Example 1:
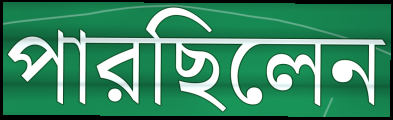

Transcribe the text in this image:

পারছিলেন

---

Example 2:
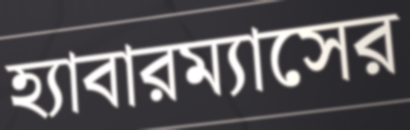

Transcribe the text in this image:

হ্যাবারম্যাসের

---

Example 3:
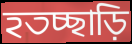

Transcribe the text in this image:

হতচ্ছাড়ি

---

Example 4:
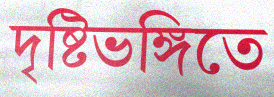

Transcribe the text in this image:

দৃষ্টিভঙ্গিতে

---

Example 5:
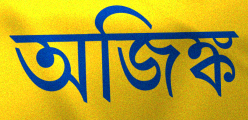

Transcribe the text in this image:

অজিঙ্ক